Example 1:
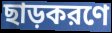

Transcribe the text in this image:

ছাড়করণে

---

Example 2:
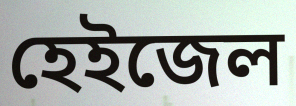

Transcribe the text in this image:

হেইজেল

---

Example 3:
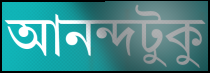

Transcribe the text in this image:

আনন্দটুকু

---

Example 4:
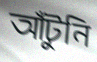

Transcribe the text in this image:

আঁটুনি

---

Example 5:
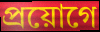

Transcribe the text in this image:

প্রয়োগে